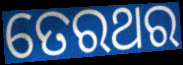
ତେରଥର